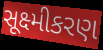
સૂક્ષ્મીકરણ